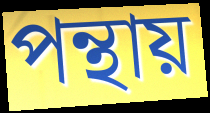
পন্থায়